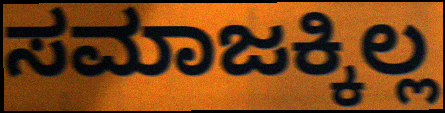
ಸಮಾಜಕ್ಕಿಲ್ಲ